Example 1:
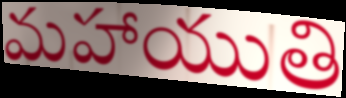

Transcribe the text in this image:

మహాయుతి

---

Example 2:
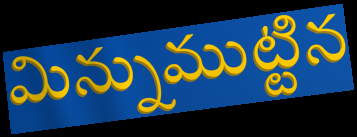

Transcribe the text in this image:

మిన్నుముట్టిన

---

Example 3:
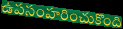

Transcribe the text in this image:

ఉపసంహరించుకొంది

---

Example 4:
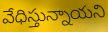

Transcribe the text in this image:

వేధిస్తున్నాయని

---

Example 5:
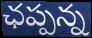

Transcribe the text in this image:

ఛప్పన్న